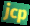
jcp